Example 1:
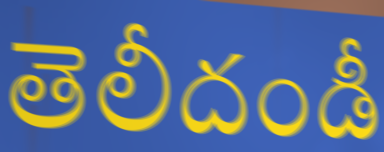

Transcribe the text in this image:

తెలీదండీ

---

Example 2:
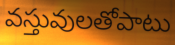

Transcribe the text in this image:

వస్తువులతోపాటు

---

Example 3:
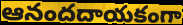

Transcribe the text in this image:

ఆనందదాయకంగా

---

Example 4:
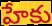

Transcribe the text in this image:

హేకు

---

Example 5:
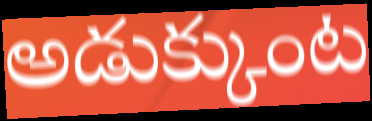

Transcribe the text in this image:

అడుక్కుంట